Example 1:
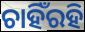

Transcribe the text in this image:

ଚାହିଁରହି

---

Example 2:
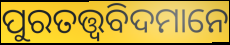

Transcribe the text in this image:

ପୁରତତ୍ତ୍ୱବିଦମାନେ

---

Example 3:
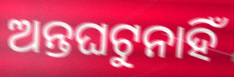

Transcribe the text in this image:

ଅନ୍ତଘଟୁନାହିଁ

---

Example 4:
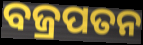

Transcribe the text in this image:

ବଜ୍ରପତନ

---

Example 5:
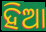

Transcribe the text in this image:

ହିଆ